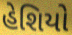
હેશિયો